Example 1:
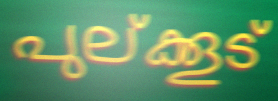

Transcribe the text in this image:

പുല്ക്കൂട്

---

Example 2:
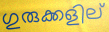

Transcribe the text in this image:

ഗുരുക്കളില്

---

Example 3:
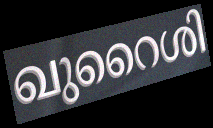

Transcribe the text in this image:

ഖുറൈശി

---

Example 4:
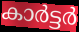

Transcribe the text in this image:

കാർട്ടർ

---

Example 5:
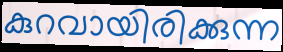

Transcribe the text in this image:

കുറവായിരിക്കുന്ന